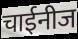
चाईनीज